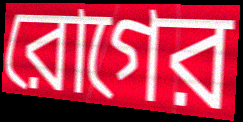
রোগের